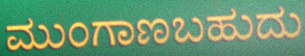
ಮುಂಗಾಣಬಹುದು